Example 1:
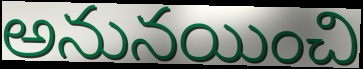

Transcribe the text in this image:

అనునయించి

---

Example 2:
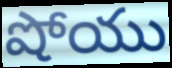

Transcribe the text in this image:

షోయు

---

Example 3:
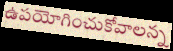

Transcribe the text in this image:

ఉపయోగించుకోవాలన్న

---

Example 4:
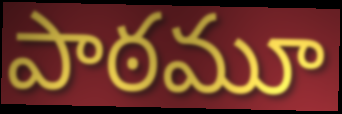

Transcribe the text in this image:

పాఠమూ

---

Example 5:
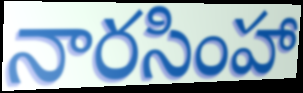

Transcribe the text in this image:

నారసింహా